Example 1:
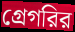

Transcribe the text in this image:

গ্রেগরির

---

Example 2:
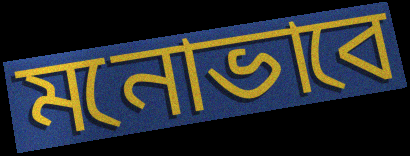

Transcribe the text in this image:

মনোভাবে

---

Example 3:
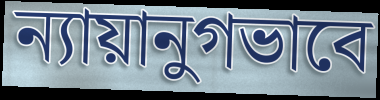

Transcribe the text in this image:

ন্যায়ানুগভাবে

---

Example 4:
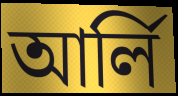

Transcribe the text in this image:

আর্লি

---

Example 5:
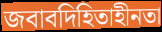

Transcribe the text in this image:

জবাবদিহিতাহীনতা